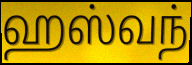
ஹஸ்வந்